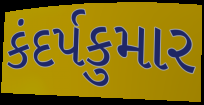
કંદર્પકુમાર